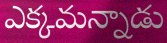
ఎక్కమన్నాడు